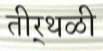
तीर्थळी